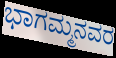
ಭಾಗಮ್ಮನವರ